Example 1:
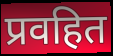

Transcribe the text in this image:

प्रवहित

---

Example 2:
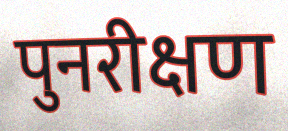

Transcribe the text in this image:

पुनरीक्षण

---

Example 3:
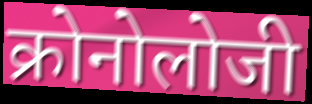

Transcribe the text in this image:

क्रोनोलोजी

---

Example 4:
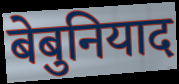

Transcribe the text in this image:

बेबुनियाद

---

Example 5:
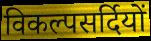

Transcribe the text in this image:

विकल्पसर्दियों